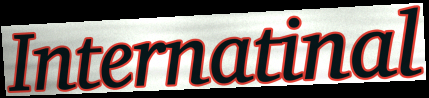
Internatinal